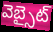
వెబ్సైట్